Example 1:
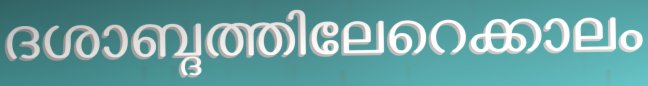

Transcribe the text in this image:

ദശാബ്ദത്തിലേറെക്കാലം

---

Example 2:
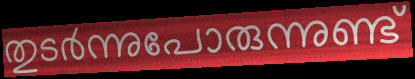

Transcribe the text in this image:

തുടർന്നുപോരുന്നുണ്ട്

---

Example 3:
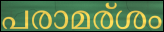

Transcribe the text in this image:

പരാമര്ശം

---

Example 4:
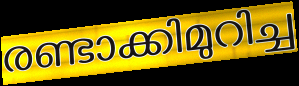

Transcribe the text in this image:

രണ്ടാക്കിമുറിച്ച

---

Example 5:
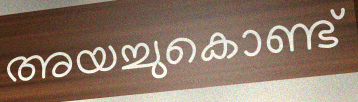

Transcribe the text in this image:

അയച്ചുകൊണ്ട്